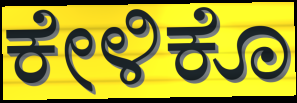
ಕೇಳಿಕೊ